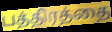
பத்திரத்தை